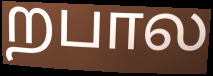
றபால